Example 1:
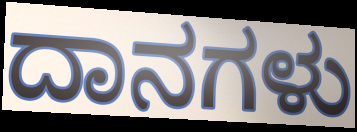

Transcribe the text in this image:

ದಾನಗಳು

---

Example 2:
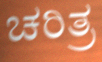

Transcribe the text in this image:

ಚರಿತ್ರ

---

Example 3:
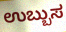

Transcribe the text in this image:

ಉಬ್ಬುಸ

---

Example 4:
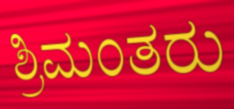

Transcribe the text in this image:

ಶ್ರಿಮಂತರು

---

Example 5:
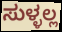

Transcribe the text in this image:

ಸುಳ್ಳಲ್ಲ